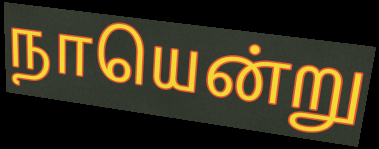
நாயென்று